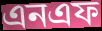
এনএফ